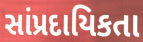
સાંપ્રદાયિકતા